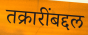
तक्रारींबद्दल